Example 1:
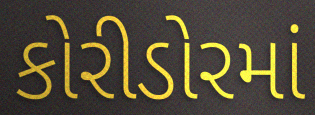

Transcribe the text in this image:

કોરીડોરમાં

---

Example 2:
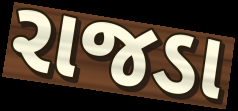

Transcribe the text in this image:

રાજડા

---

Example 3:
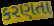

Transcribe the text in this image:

કરણતા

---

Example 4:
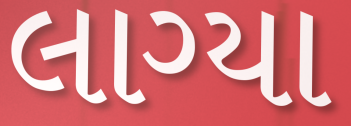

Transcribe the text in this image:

લાગ્યા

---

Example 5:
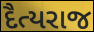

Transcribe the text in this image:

દૈત્યરાજ